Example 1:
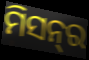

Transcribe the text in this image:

ମିସନ୍‍ର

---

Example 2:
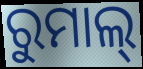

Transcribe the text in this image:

ରୁମାଲ୍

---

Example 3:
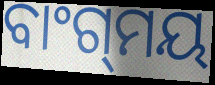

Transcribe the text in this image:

ବାଂଗ୍‌ମୟ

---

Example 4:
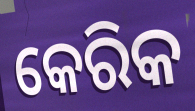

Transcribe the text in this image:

କେରିକ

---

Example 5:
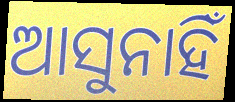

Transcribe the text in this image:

ଆସୁନାହିଁ